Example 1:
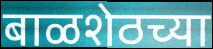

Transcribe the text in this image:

बाळशेठच्या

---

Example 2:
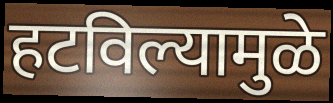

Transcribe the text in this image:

हटविल्यामुळे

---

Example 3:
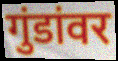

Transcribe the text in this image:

गुंडांवर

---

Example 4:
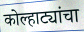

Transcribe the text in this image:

कोल्हाट्यांचा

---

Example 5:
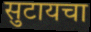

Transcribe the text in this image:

सुटायचा